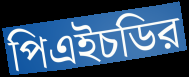
পিএইচডির